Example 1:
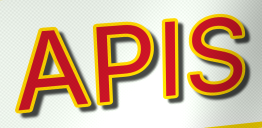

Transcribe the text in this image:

APIS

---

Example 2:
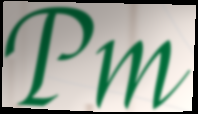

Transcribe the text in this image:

Pm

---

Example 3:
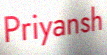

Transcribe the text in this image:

Priyansh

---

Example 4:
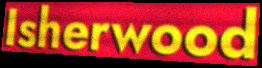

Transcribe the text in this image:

Isherwood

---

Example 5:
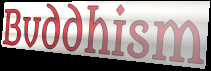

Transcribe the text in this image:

Buddhism